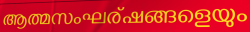
ആത്മസംഘര്ഷങ്ങളെയും